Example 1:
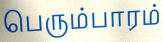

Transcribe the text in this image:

பெரும்பாரம்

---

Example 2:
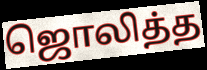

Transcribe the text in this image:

ஜொலித்த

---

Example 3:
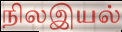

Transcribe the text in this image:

நிலஇயல்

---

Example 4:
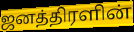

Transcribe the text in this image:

ஜனத்திரளின்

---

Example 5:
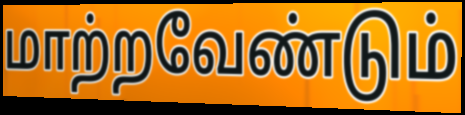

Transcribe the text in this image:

மாற்றவேண்டும்